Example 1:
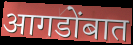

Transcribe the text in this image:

आगडोंबात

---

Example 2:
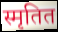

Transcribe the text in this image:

स्मृतित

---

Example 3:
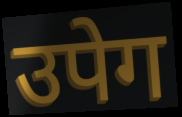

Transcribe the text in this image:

उपेग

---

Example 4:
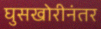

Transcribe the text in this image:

घुसखोरीनंतर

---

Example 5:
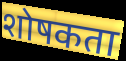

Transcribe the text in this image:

शोषकता